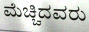
ಮೆಚ್ಚಿದವರು